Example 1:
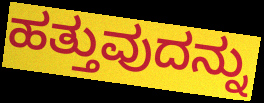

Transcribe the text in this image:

ಹತ್ತುವುದನ್ನು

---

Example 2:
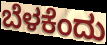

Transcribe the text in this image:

ಬೆಳಕೆಂದು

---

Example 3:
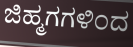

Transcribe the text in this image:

ಜಿಹ್ಮಗಗಳಿಂದ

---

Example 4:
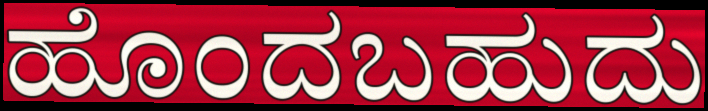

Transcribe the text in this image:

ಹೊಂದಬಹುದು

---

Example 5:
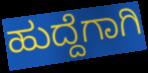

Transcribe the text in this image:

ಹುದ್ದೆಗಾಗಿ